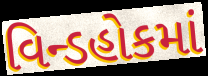
વિન્ડહોકમાં